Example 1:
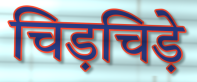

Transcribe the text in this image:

चिड़चिड़े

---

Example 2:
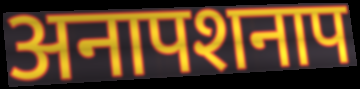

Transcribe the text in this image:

अनापशनाप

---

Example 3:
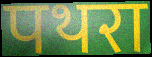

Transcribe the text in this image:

पथरा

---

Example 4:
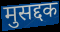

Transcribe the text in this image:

मुसद्दक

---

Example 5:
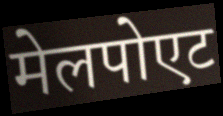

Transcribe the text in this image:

मेलपोएट